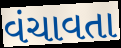
વંચાવતા